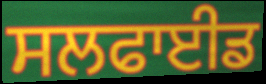
ਸਲਫਾਈਡ